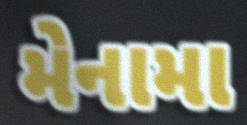
મેનામા